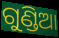
ଗୁଣ୍ଡିଆ